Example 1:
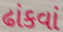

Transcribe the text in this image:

ઢાંકવાં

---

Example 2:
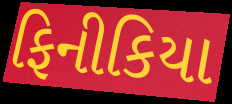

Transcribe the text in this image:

ફિનીકિયા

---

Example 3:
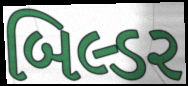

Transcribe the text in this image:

બિલ્ડર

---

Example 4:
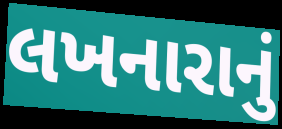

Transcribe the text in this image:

લખનારાનું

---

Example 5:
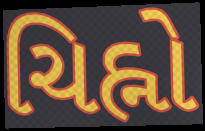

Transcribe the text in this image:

ચિહ્નો